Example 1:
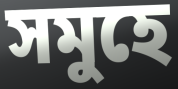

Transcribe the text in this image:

সমুহে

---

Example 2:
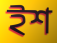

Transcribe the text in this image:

ইশ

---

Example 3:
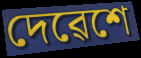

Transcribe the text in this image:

দেৱেশে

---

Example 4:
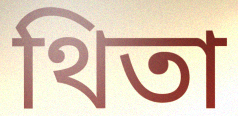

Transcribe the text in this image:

থিতা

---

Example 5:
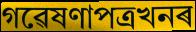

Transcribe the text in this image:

গৱেষণাপত্ৰখনৰ